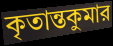
কৃতান্তকুমার